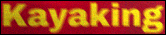
Kayaking